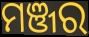
ମଞ୍ଜର